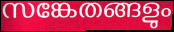
സങ്കേതങ്ങളും